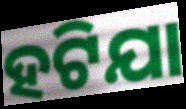
ହଟିଯା